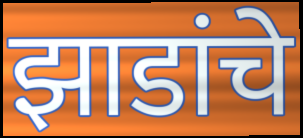
झाडांचे